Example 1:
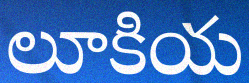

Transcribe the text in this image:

లూకియ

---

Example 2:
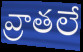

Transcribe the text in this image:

వ్రాతలే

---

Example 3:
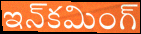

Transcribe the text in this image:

ఇన్‌కమింగ్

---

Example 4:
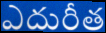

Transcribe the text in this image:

ఎదురీత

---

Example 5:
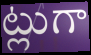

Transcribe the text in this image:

ట్లుగా